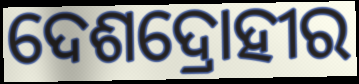
ଦେଶଦ୍ରୋହୀର